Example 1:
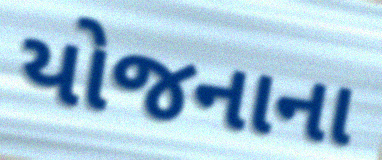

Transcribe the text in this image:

યોજનાના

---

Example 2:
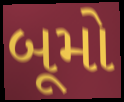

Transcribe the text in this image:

બૂમો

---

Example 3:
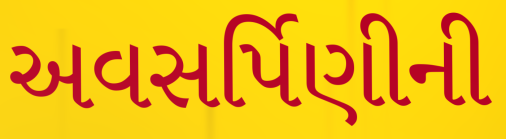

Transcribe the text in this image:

અવસર્પિણીની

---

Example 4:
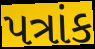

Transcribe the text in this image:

પત્રાંક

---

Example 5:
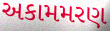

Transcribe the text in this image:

અકામમરણ